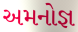
અમનોજ્ઞ